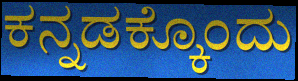
ಕನ್ನಡಕ್ಕೊಂದು